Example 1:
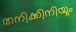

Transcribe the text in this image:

തനിക്കിനിയും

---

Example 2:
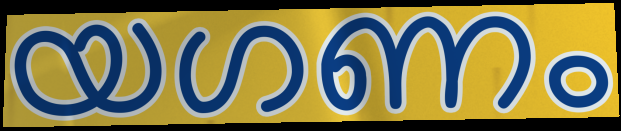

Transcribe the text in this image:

യഗണം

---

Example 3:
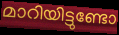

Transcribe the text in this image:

മാറിയിട്ടുണ്ടോ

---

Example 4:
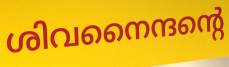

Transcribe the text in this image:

ശിവനൈന്ദന്റെ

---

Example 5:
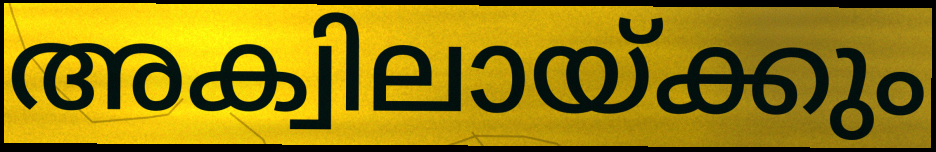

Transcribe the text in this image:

അക്വിലായ്ക്കും